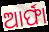
ଆର୍ଫା